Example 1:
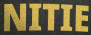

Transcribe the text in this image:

NITIE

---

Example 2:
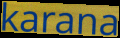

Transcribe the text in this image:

karana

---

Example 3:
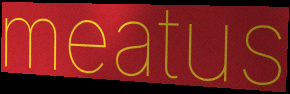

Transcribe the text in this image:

meatus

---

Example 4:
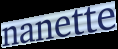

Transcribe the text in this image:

nanette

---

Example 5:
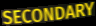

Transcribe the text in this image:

SECONDARY